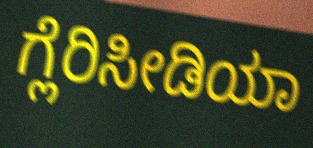
ಗ್ಲೆರಿಸೀಡಿಯಾ